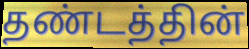
தண்டத்தின்